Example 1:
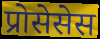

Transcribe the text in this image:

प्रोसेसेस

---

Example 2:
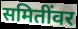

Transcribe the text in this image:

समितींवर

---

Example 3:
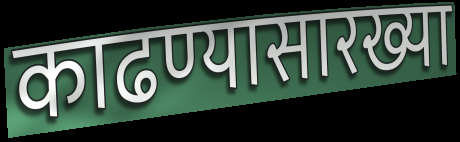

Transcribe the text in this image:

काढण्यासारख्या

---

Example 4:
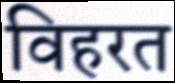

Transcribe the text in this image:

विहरत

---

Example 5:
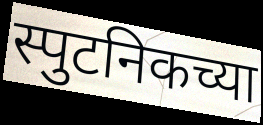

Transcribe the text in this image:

स्पुटनिकच्या